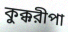
কুক্করীপা